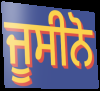
ਜੂਸੀਨੋ